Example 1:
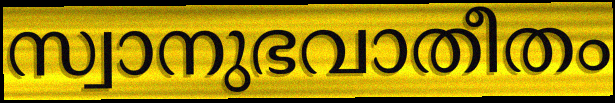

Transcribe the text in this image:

സ്വാനുഭവാതീതം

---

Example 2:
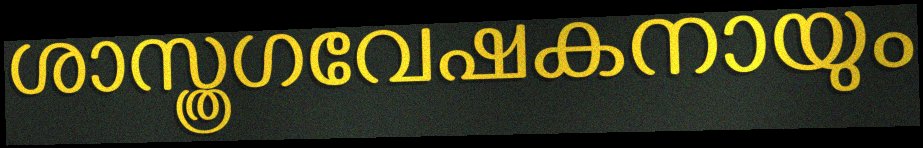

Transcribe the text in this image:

ശാസ്ത്രഗവേഷകനായും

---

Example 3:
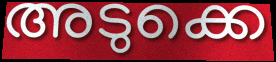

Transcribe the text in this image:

അടുക്കെ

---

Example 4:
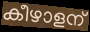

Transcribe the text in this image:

കീഴാളന്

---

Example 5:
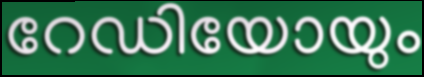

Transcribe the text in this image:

റേഡിയോയും